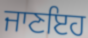
ਜਾਣਇਹ